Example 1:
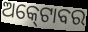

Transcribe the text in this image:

ଅକ୍‍ଟୋବର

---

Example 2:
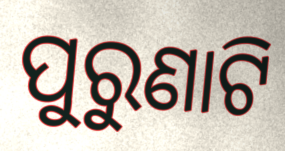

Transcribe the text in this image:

ପୁରୁଣାଟି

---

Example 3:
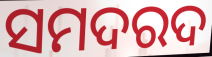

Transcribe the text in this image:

ସମଦରଦ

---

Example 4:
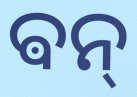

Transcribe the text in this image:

ଵନ୍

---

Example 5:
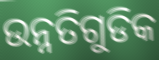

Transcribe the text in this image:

ଉନ୍ନତିଗୁଡିକ